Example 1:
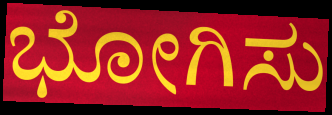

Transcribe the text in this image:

ಭೋಗಿಸು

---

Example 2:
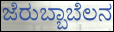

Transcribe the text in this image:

ಜೆರುಬ್ಬಾಬೆಲನ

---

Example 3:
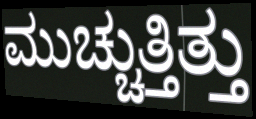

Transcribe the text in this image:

ಮುಚ್ಚುತ್ತಿತ್ತು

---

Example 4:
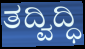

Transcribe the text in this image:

ತದ್ವಿದ್ಧಿ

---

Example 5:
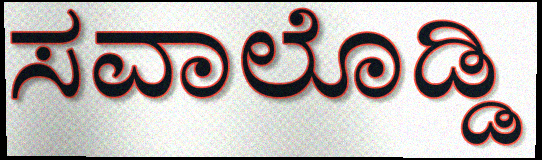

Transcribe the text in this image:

ಸವಾಲೊಡ್ಡಿ